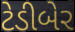
ટેડીબેર